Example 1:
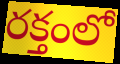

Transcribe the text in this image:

రక్తంలో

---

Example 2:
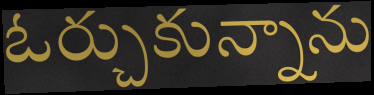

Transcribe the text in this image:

ఓర్చుకున్నాను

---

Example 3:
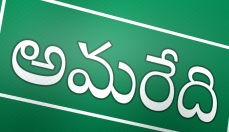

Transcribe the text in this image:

అమరేది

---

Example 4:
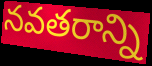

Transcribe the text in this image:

నవతరాన్ని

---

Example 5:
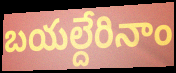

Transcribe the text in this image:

బయల్దేరినాం